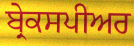
ਬ੍ਰੇਕਸਪੀਅਰ